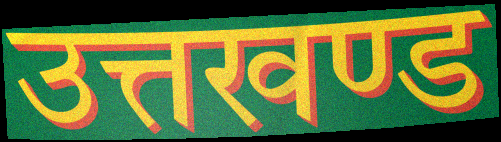
उत्तखण्ड